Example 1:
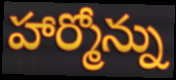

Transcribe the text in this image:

హార్మోన్ను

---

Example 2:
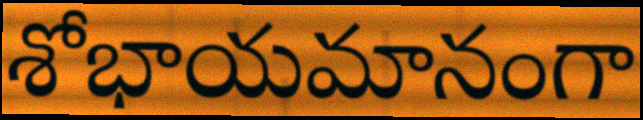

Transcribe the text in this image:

శోభాయమానంగా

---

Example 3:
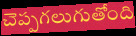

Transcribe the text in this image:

చెప్పగలుగుతోంది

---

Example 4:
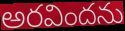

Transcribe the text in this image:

అరవిందను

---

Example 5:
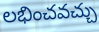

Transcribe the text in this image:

లభించవచ్చు